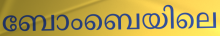
ബോംബെയിലെ